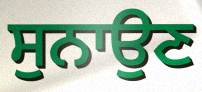
ਸੁਨਾਉਣ